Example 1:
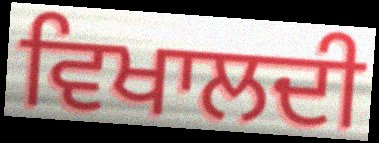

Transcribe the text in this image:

ਵਿਖਾਲਦੀ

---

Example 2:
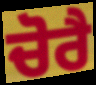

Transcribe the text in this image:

ਚੋਰੈ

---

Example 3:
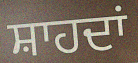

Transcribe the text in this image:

ਸ਼ਾਹਦਾਂ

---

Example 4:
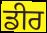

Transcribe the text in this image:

ਡੀਰ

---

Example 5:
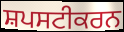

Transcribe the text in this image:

ਸ਼ਪਸਟੀਕਰਨ